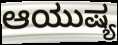
ಆಯುಷ್ಯ